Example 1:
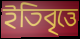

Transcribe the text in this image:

ইতিবৃত্তে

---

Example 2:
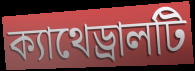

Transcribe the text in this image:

ক্যাথেড্রালটি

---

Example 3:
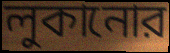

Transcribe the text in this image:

লুকানোর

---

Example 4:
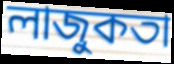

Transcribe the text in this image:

লাজুকতা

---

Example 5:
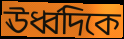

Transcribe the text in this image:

ঊর্ধ্বদিকে